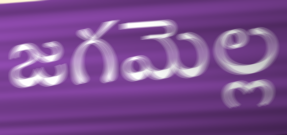
జగమెల్ల